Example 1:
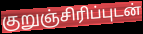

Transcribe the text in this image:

குறுஞ்சிரிப்புடன்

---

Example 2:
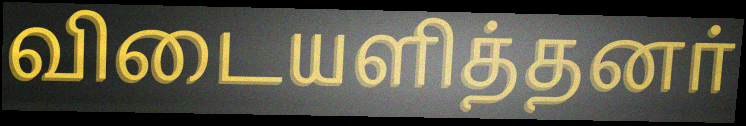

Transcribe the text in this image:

விடையளித்தனர்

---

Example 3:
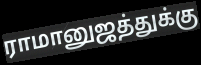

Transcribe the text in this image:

ராமானுஜத்துக்கு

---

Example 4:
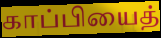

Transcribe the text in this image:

காப்பியைத்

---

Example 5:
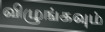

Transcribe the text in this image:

விழுங்கவும்